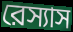
রেস্যাস